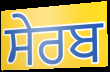
ਸੇਰਬ